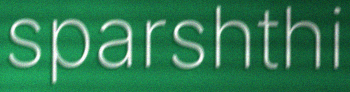
sparshthi